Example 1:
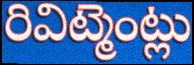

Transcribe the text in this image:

రివిట్మెంట్లు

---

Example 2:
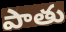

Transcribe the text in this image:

పాతు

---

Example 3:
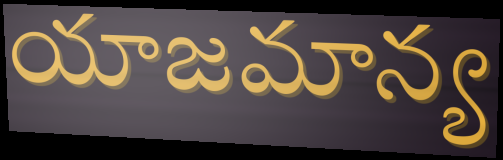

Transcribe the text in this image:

యాజమాన్య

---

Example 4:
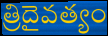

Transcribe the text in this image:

త్రిదైవత్యం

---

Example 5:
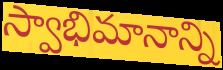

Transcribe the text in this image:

స్వాభిమానాన్ని